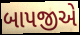
બાપજીએ